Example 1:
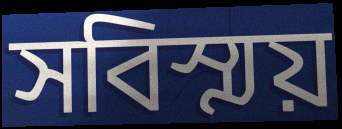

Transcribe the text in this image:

সবিস্ময়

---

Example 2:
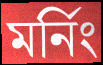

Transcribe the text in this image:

মর্নিং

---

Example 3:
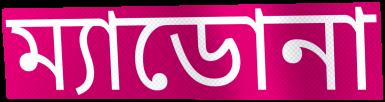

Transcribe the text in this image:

ম্যাডোনা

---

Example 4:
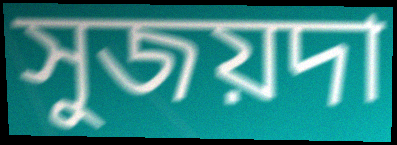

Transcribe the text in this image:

সুজয়দা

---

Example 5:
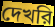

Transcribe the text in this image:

দেখরি